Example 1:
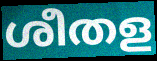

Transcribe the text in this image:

ശീതള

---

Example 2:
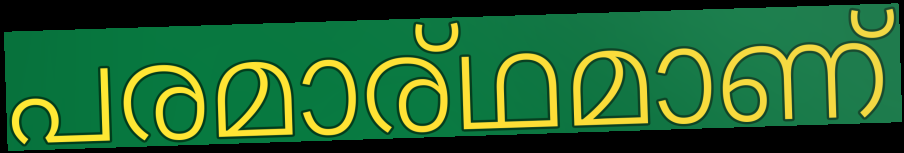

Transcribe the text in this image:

പരമാര്ഥമാണ്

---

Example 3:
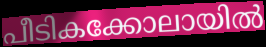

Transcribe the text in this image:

പീടികക്കോലായിൽ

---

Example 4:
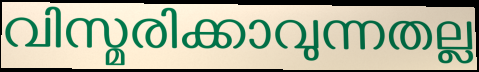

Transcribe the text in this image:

വിസ്മരിക്കാവുന്നതല്ല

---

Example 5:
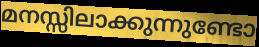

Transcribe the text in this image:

മനസ്സിലാക്കുന്നുണ്ടോ